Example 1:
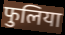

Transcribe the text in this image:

फुलिया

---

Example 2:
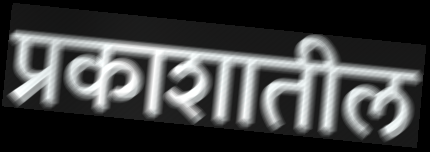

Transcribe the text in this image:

प्रकाशातील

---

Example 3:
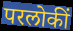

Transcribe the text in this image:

परलोकीं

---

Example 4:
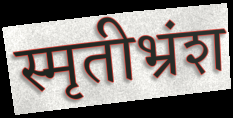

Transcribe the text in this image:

स्मृतीभ्रंश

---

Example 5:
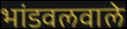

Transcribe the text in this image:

भांडवलवाले